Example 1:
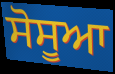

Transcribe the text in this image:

ਸੋਸੂਆ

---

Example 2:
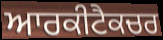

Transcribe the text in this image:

ਆਰਕੀਟੈਕਚਰ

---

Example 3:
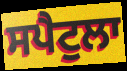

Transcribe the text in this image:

ਸਪੈਟੁਲਾ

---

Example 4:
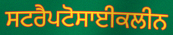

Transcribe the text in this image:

ਸਟਰੈਪਟੋਸਾਈਕਲੀਨ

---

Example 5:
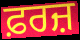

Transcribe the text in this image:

ਫ਼ਰਜ਼